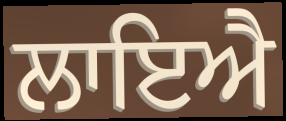
ਲਾਇਐ